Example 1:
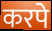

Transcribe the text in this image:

करपे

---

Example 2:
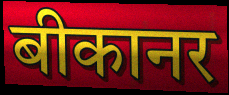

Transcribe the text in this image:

बीकानर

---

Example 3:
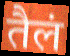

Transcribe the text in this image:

तैलं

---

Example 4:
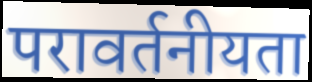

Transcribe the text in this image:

परावर्तनीयता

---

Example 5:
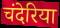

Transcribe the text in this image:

चंदेरिया